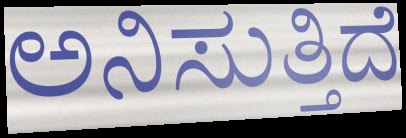
ಅನಿಸುತ್ತಿದೆ